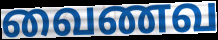
வைணவ